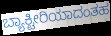
ಬ್ಯಾಕ್ಟೀರಿಯಾದಂತಹ